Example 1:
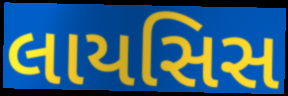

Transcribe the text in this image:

લાયસિસ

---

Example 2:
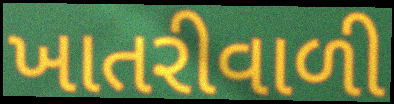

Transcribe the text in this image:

ખાતરીવાળી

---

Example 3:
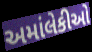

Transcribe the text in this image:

અમાંલેકીઓ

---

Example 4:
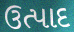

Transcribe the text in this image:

ઉત્પાદ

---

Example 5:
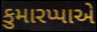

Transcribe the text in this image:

કુમારપ્પાએ